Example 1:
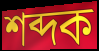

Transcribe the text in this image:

শব্দক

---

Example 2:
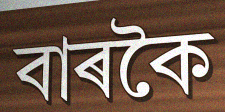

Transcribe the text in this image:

বাৰকৈ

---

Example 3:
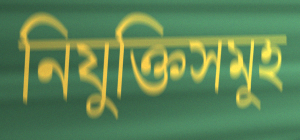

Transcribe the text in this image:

নিযুক্তিসমূহ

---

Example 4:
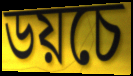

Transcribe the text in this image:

ডয়চে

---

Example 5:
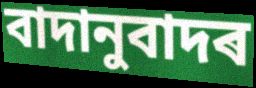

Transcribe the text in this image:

বাদানুবাদৰ